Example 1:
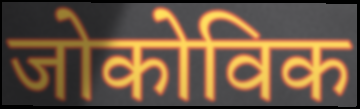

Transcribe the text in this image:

जोकोविक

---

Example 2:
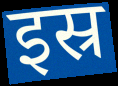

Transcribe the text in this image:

इस्र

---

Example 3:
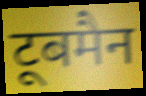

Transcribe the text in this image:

टूबमैन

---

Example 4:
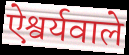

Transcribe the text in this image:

ऐश्वर्यवाले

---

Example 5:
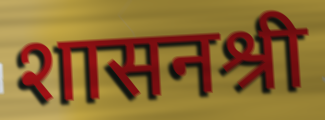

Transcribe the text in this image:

शासनश्री